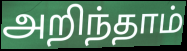
அறிந்தாம்